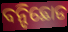
ବନ୍ଦିଛୋଡ